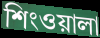
শিংওয়ালা